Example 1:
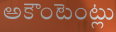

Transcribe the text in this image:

అకౌంటెంట్లు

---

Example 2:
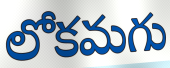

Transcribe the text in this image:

లోకమగు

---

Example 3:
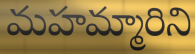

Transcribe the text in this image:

మహమ్మారిని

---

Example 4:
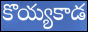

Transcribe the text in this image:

కొయ్యకాడ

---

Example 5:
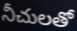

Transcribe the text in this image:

నీచులతో